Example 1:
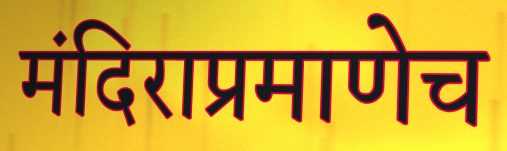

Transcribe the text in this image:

मंदिराप्रमाणेच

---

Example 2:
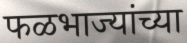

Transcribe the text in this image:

फळभाज्यांच्या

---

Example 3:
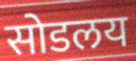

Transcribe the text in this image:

सोडलय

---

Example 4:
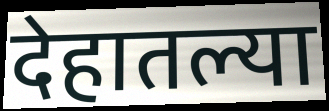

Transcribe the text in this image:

देहातल्या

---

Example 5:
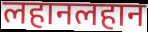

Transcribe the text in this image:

लहानलहान